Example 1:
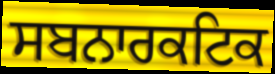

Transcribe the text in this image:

ਸਬਨਾਰਕਟਿਕ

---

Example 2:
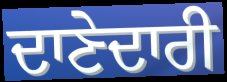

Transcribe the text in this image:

ਦਾਣੇਦਾਰੀ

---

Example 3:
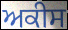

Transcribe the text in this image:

ਅਕੀਸ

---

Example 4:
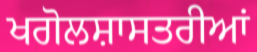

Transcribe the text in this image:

ਖਗੋਲਸ਼ਾਸਤਰੀਆਂ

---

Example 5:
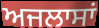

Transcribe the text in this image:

ਅਜਲਾਸਾਂ